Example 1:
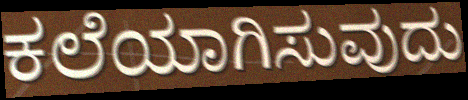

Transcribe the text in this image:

ಕಲೆಯಾಗಿಸುವುದು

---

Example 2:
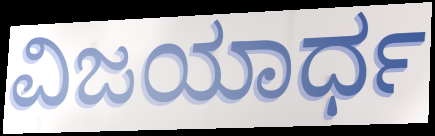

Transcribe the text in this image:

ವಿಜಯಾರ್ಧ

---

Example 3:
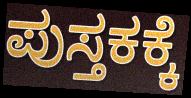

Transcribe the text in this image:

ಪುಸ್ತಕಕ್ಕೆ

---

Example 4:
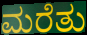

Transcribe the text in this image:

ಮರೆತು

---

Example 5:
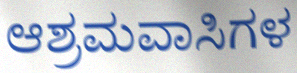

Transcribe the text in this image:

ಆಶ್ರಮವಾಸಿಗಳ